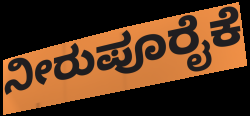
ನೀರುಪೂರೈಕೆ